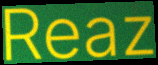
Reaz